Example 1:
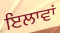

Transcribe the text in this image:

ਇਲਾਵਾਂ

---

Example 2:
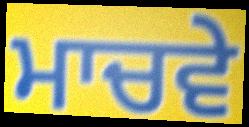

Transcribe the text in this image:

ਮਾਚਵੇ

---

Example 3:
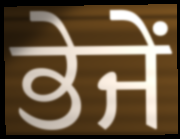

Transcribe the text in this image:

ਭੇਜੇਂ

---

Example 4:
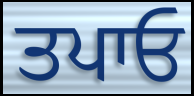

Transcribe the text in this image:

ਤਪਾਓ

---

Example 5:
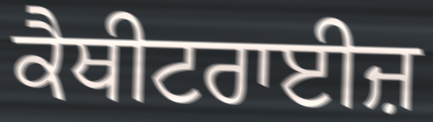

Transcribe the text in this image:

ਕੈਥੀਟਰਾਈਜ਼